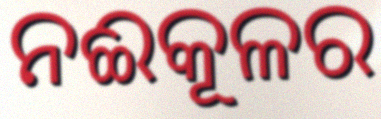
ନଈକୂଳର